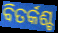
ବିତର୍କଶ୍ଚ